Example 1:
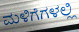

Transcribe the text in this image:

ಮಳಿಗೆಗಳಲ್ಲಿ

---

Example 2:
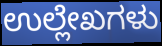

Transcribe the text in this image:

ಉಲ್ಲೇಖಗಳು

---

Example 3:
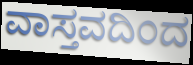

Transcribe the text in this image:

ವಾಸ್ತವದಿಂದ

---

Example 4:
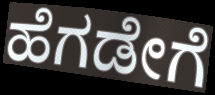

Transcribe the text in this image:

ಹೆಗಡೇಗೆ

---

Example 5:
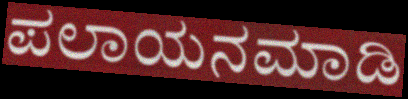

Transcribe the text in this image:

ಪಲಾಯನಮಾಡಿ